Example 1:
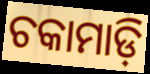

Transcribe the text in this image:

ଚକାମାଡ଼ି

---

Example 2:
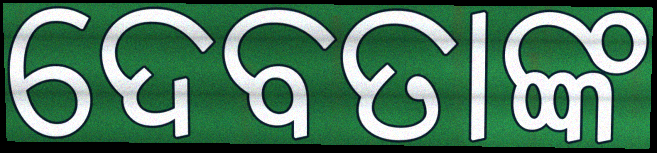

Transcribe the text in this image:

ଦେବତାଙ୍କ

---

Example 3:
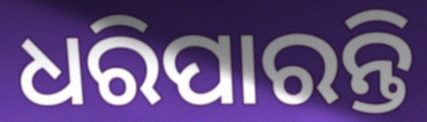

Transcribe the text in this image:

ଧରିପାରନ୍ତି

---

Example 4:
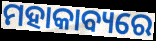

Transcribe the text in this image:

ମହାକାବ୍ୟରେ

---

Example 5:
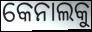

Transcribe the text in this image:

କେନାଲକୁ